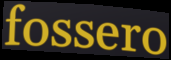
fossero